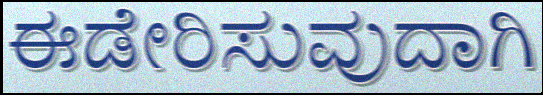
ಈಡೇರಿಸುವುದಾಗಿ